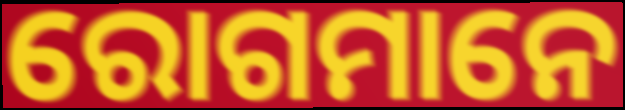
ରୋଗମାନେ